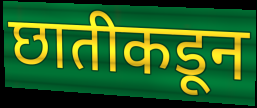
छातीकडून